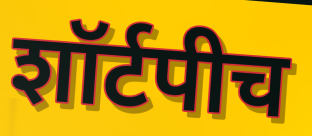
शॉर्टपीच